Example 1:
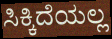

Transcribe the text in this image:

ಸಿಕ್ಕಿದೆಯಲ್ಲ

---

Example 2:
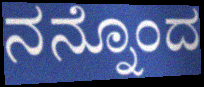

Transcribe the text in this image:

ನನ್ನೊಂದ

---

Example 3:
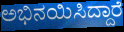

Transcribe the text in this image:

ಅಭಿನಯಿಸಿದ್ದಾರೆ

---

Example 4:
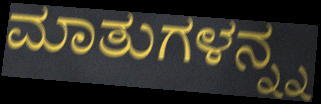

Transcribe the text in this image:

ಮಾತುಗಳನ್ನ್ನ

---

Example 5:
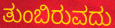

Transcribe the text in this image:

ತುಂಬಿರುವದು